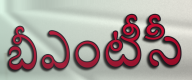
బీఎంటీసీ